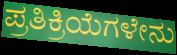
ಪ್ರತಿಕ್ರಿಯೆಗಳೇನು